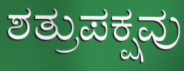
ಶತ್ರುಪಕ್ಷವು